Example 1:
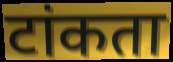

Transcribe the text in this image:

टांकता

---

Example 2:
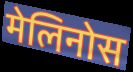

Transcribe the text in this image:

मेलिनोस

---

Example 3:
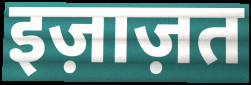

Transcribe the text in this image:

इज़ाज़त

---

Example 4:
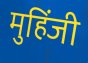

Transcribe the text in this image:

मुहिंजी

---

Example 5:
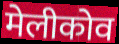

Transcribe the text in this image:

मेलीकोव